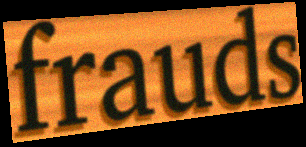
frauds